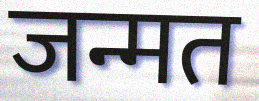
जन्मत